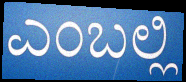
ಎಂಬಲ್ಲಿ